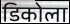
डिकोला